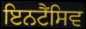
ਇਨਟੈਂਸਿਵ